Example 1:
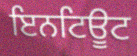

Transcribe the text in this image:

ਇਨਟਿਊਟ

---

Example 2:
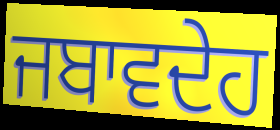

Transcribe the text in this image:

ਜਬਾਵਦੇਹ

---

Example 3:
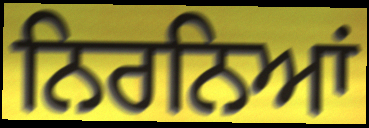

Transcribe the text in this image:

ਨਿਰਨਿਆਂ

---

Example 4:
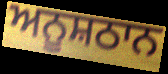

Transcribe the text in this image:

ਅਨੂਸ਼ਠਾਨ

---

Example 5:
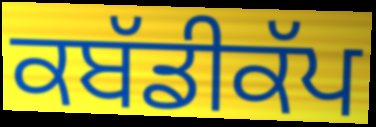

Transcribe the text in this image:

ਕਬੱਡੀਕੱਪ